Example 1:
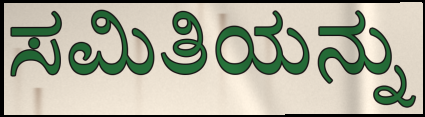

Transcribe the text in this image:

ಸಮಿತಿಯನ್ನು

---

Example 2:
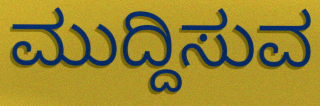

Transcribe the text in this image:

ಮುದ್ದಿಸುವ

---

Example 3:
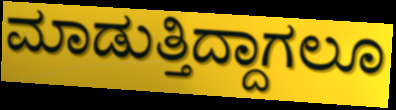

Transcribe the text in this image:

ಮಾಡುತ್ತಿದ್ದಾಗಲೂ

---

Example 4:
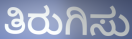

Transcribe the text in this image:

ತಿರುಗಿಸು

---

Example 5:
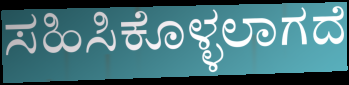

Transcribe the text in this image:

ಸಹಿಸಿಕೊಳ್ಳಲಾಗದೆ